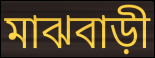
মাঝবাড়ী